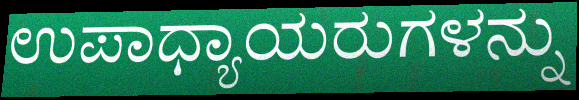
ಉಪಾಧ್ಯಾಯರುಗಳನ್ನು